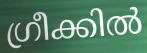
ഗ്രീക്കിൽ